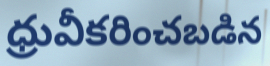
ధ్రువీకరించబడిన